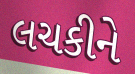
લચકીને